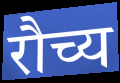
रौच्य